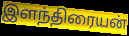
இளந்திரையன்